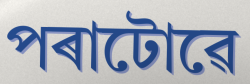
পৰাটোৱে